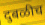
दुबळीच